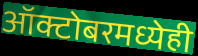
ऑक्टोबरमध्येही